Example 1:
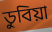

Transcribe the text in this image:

ডুবিয়া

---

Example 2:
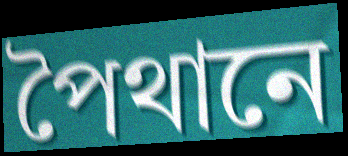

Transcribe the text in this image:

পৈথানে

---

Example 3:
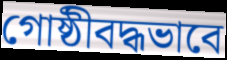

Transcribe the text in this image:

গোষ্ঠীবদ্ধভাবে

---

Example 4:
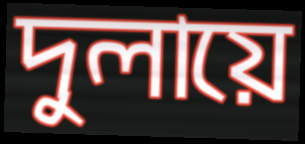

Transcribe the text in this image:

দুলায়ে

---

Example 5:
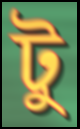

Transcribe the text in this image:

টু